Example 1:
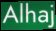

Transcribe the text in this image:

Alhaj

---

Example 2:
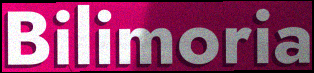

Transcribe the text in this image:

Bilimoria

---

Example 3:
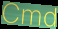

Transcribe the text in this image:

Cmd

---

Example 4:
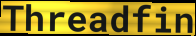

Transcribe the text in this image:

Threadfin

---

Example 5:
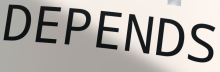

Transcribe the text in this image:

DEPENDS